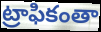
ట్రాఫికంతా